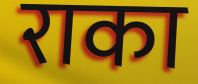
राका